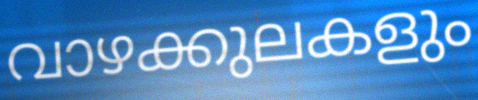
വാഴക്കുലകളും